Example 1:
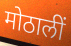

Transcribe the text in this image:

मोठालीं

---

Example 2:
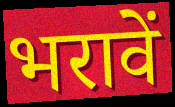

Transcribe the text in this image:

भरावें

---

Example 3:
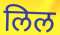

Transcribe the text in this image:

लिल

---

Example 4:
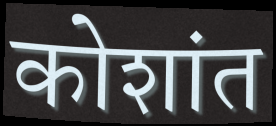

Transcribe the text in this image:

कोशांत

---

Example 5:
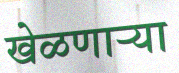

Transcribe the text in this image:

खेळणाऱ्या